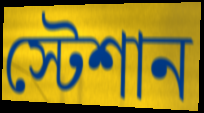
স্টেশান